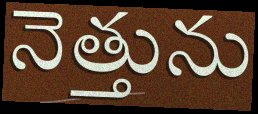
నెత్తును